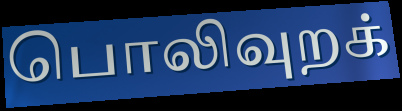
பொலிவுறக்